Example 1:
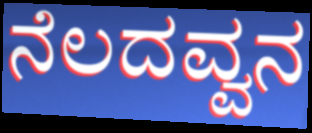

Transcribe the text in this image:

ನೆಲದವ್ವನ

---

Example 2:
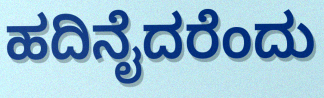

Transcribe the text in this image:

ಹದಿನೈದರೆಂದು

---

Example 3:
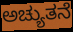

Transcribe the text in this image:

ಅಚ್ಯುತನೆ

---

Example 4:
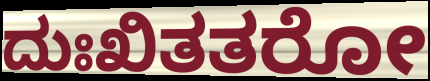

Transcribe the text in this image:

ದುಃಖಿತತರೋ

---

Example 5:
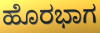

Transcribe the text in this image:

ಹೊರಭಾಗ